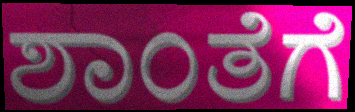
ಶಾಂತೆಗೆ